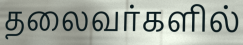
தலைவர்களில்